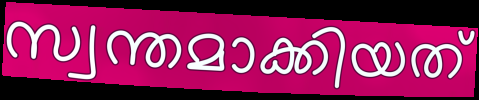
സ്വന്തമാക്കിയത്